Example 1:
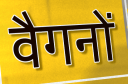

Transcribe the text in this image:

वैगनों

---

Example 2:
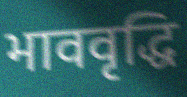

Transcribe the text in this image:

भाववृद्धि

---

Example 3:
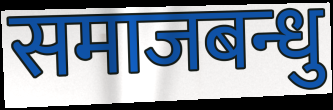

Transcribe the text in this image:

समाजबन्धु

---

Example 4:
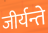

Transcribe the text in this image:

जीर्यन्ते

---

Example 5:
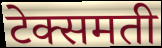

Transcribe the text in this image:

टेक्समती